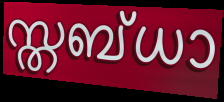
സ്തബ്ധാ